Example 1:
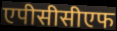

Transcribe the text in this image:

एपीसीसीएफ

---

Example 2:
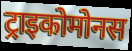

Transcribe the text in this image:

ट्राइकोमोनस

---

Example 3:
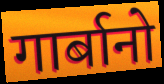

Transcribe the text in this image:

गार्बानो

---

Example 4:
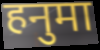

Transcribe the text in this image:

हनुमा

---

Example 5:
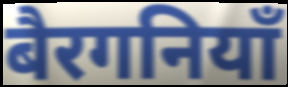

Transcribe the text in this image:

बैरगनियाँ